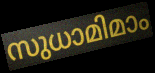
സുധാമിമാം